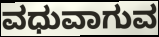
ವಧುವಾಗುವ